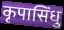
कृपासिंधु